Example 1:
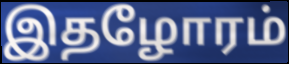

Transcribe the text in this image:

இதழோரம்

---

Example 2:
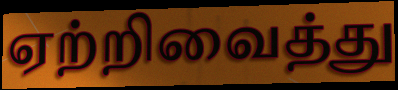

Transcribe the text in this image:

ஏற்றிவைத்து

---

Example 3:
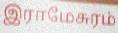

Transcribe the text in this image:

இராமேசுரம்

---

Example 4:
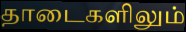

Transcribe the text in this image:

தாடைகளிலும்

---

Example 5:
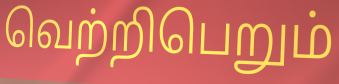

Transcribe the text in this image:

வெற்றிபெறும்